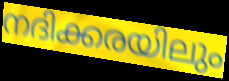
നദിക്കരയിലും